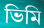
ভিমি